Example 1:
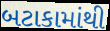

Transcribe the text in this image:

બટાકામાંથી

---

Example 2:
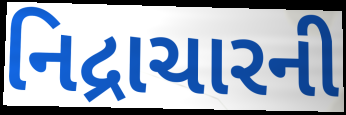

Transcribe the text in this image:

નિદ્રાચારની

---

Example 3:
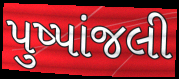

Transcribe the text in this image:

પુષ્પાંજલી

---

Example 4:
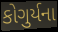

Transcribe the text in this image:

કોગુર્યના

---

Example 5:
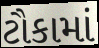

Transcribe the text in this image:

ટૌકામાં